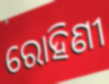
ରୋହିଣୀ